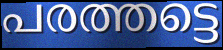
പരത്തട്ടെ